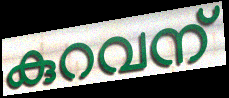
കുറവന്